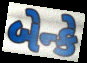
બેન્કે